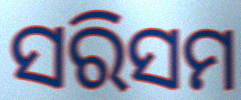
ସରିସମ